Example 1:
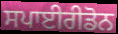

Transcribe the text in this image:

ਸਪਾਈਰੀਡੋਨ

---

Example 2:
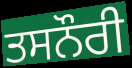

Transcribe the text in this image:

ਤਸਨੌਰੀ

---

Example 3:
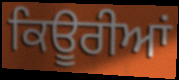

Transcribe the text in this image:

ਕਿਊਰੀਆਂ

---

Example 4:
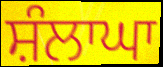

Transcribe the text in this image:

ਸ਼ੰਲਾਘਾ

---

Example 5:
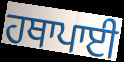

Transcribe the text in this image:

ਹਥਾਪਾਈ